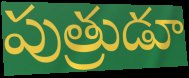
పుత్రుడూ